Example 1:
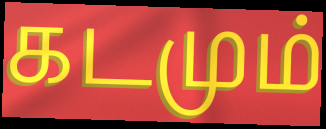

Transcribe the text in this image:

கடமும்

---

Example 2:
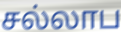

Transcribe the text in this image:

சல்லாப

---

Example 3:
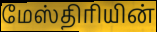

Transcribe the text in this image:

மேஸ்திரியின்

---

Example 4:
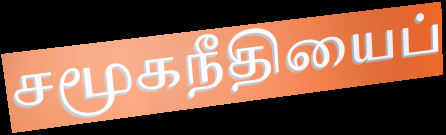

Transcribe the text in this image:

சமூகநீதியைப்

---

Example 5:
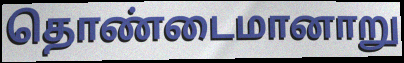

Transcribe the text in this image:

தொண்டைமானாறு